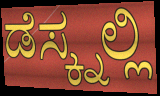
ಡೆಸ್ಕ್ನಲ್ಲಿ